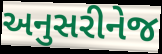
અનુસરીનેજ